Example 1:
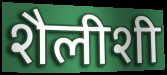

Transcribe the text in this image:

शैलीशी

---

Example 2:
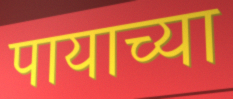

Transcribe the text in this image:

पायाच्या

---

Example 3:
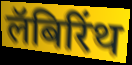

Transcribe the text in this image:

लॅबिरिंथ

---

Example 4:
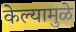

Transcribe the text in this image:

केल्यामुळे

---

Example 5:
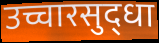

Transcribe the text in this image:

उच्चारसुद्धा